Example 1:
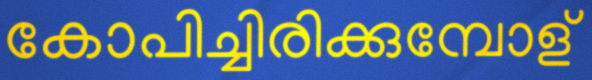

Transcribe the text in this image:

കോപിച്ചിരിക്കുമ്പോള്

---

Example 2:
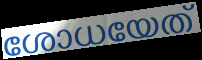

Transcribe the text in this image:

ശോധയേത്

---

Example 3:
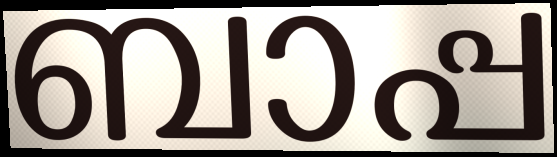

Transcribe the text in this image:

ബാപ്പ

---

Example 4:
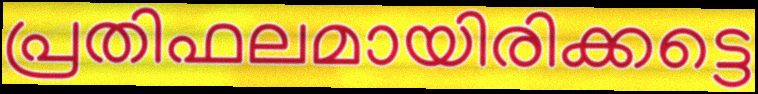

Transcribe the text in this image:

പ്രതിഫലമായിരിക്കട്ടെ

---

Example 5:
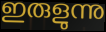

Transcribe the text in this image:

ഇരുളുന്നു